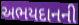
અભયદાનની